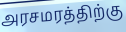
அரசமரத்திற்கு